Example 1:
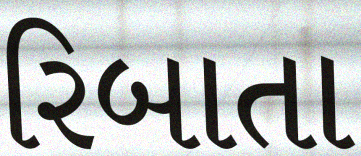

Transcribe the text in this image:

રિબાતા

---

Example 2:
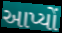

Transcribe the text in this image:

આપ્યોં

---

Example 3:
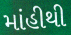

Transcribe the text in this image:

માંહીથી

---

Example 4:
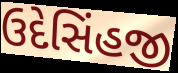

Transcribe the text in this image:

ઉદેસિંહજી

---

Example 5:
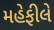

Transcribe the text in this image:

મહેફીલે